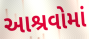
આશ્રવોમાં